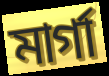
মাৰ্গা